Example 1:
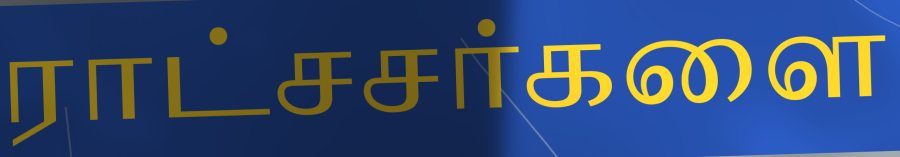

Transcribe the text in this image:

ராட்சசர்களை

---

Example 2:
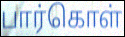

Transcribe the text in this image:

பார்கொள்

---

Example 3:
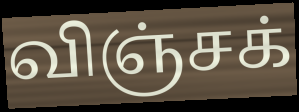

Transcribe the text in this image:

விஞ்சக்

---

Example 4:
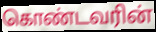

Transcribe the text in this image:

கொண்டவரின்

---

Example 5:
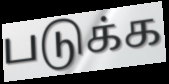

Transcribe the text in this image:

படுக்க